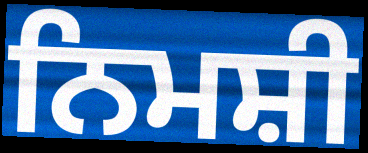
ਨਿਮਸ਼ੀ